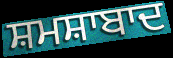
ਸ਼ਮਸ਼ਾਬਾਦ